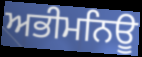
ਅਭੀਮਨਿਊ